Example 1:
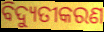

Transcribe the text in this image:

ବିଦ୍ୟୁତୀକରଣ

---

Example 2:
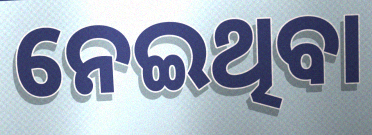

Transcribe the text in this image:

ନେଇଥିବା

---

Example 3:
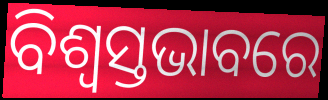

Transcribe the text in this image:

ବିଶ୍ୱସ୍ତଭାବରେ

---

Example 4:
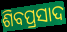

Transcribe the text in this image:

ଶିବପ୍ରସାଦ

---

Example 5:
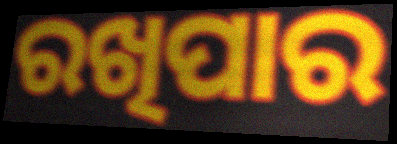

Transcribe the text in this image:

ରଖିପାର